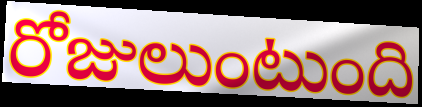
రోజులుంటుంది